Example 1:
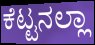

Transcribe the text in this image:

ಕೆಟ್ಟನಲ್ಲಾ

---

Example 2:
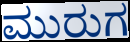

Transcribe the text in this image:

ಮುರುಗ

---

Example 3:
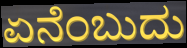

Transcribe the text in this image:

ಏನೆಂಬುದು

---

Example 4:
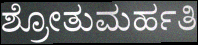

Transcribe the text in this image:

ಶ್ರೋತುಮರ್ಹತಿ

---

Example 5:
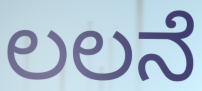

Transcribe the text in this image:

ಲಲನೆ